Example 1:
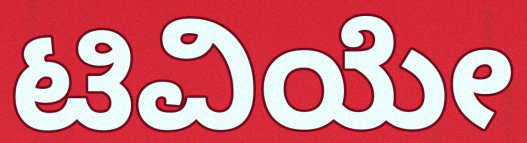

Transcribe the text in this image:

ಟಿವಿಯೇ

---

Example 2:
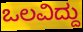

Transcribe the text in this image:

ಒಲವಿದ್ದು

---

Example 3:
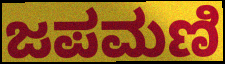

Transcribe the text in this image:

ಜಪಮಣಿ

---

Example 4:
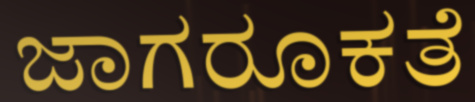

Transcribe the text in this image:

ಜಾಗರೂಕತೆ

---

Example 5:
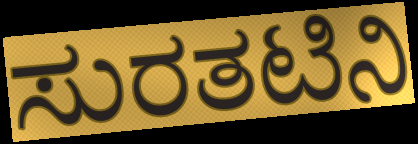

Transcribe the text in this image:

ಸುರತಟಿನಿ